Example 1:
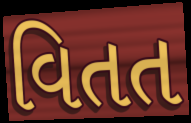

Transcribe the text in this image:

વિતત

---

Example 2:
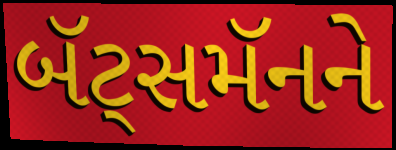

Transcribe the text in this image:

બૅટ્સમૅનને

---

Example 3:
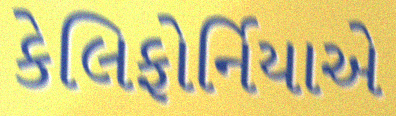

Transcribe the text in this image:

કેલિફોર્નિયાએ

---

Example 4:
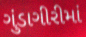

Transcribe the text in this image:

ગુંડાગીરીમાં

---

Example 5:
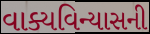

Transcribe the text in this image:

વાક્યવિન્યાસની